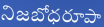
నిజబోధరూపా